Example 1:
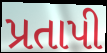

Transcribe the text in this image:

પ્રતાપી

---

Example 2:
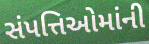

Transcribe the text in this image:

સંપત્તિઓમાંની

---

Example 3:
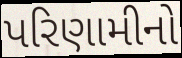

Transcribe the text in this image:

પરિણામીનો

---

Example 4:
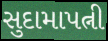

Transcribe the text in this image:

સુદામાપત્ની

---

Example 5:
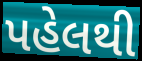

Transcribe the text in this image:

પહેલથી